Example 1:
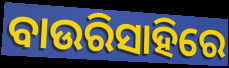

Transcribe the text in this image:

ବାଉରିସାହିରେ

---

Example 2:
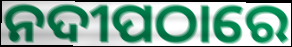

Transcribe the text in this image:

ନଦୀପଠାରେ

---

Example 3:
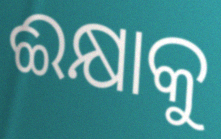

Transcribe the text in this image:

ଈକ୍ଷାକୁ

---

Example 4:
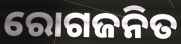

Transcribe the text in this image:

ରୋଗଜନିତ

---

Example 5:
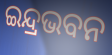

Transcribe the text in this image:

ଇନ୍ଦ୍ରଭବନ